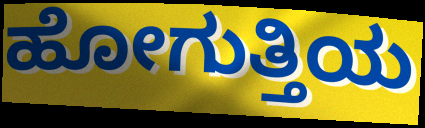
ಹೋಗುತ್ತಿಯ